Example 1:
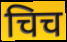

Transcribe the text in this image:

चिच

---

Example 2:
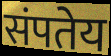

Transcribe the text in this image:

संपतेय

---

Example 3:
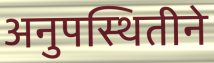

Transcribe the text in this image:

अनुपस्थितीने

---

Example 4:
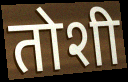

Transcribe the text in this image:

तोशी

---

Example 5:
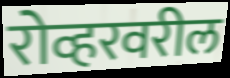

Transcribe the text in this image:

रोव्हरवरील